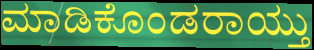
ಮಾಡಿಕೊಂಡರಾಯ್ತು